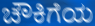
ಚೌಕಿಗೆಯ